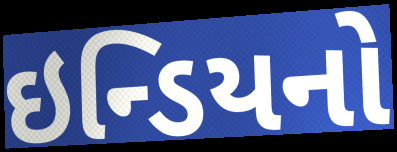
ઇન્ડિયનો